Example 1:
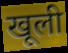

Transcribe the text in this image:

खूली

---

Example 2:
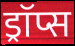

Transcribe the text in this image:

ड्रॉप्‍स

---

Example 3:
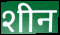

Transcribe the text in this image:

शीन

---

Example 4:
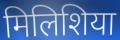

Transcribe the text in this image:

मिलिशिया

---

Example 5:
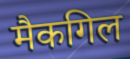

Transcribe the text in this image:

मैकगिल